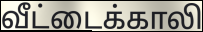
வீட்டைக்காலி